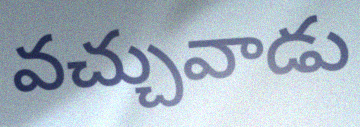
వచ్చువాడు